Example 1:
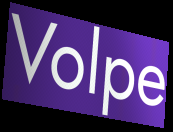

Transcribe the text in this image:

Volpe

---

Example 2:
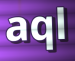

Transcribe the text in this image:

aql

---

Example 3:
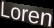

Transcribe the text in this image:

Loren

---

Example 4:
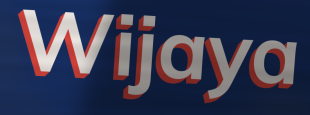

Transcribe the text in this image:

Wijaya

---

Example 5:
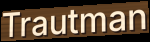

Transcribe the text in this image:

Trautman